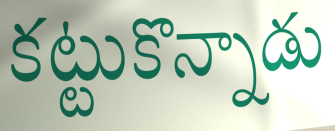
కట్టుకొన్నాడు